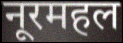
नूरमहल